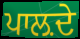
ਪਾਲ਼ਦੇ